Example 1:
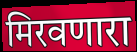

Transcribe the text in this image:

मिरवणारा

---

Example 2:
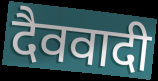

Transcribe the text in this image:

दैववादी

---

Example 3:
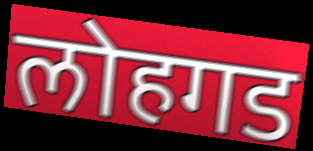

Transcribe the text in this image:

लोहगड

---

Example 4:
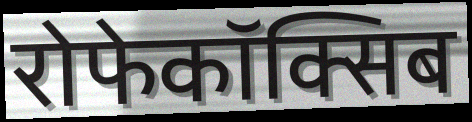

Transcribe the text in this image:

रोफेकॉक्सिब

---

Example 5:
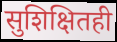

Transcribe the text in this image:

सुशिक्षितही